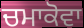
ਚਮਾਕੋਵਾ